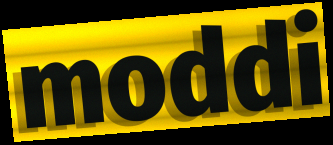
moddi